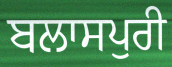
ਬਲਾਸਪੁਰੀ